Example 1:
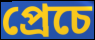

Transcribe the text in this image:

প্ৰেচে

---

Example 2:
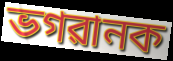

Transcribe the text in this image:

ভগৱানক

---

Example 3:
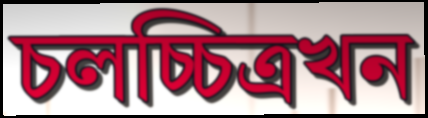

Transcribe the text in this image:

চলচ্চিত্ৰখন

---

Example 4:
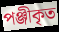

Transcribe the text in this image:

পঞ্জীকৃত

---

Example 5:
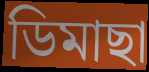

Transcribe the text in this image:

ডিমাছা